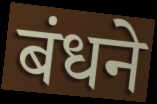
बंधने